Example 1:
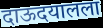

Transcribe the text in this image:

दाऊदयालला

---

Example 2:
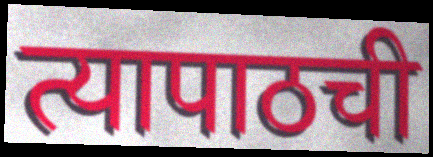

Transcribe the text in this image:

त्यापाठची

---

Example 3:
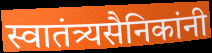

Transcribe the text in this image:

स्वातंत्र्यसैनिकांनी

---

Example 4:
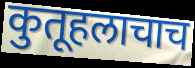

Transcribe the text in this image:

कुतूहलाचाच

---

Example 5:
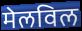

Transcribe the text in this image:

मेलविल